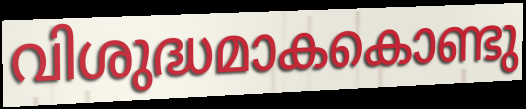
വിശുദ്ധമാകകൊണ്ടു